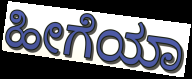
ಹೀಗೆಯಾ